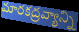
మారకద్రవ్యాన్ని